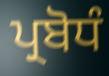
ਪ੍ਰਬੋਧੰ